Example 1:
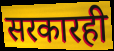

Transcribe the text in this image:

सरकारही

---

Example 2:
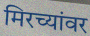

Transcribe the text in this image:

मिरच्यांवर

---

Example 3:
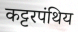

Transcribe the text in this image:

कट्टरपंथिय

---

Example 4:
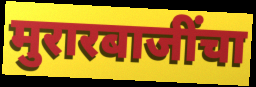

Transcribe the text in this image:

मुरारबाजींचा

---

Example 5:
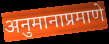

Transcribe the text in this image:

अनुमानाप्रमाणे